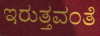
ಇರುತ್ತವಂತೆ